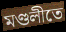
মণ্ডলীতে